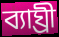
ব্যাঘ্ৰী